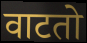
वाटतो